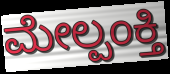
ಮೇಲ್ಪಂಕ್ತಿ